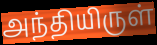
அந்தியிருள்